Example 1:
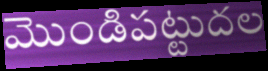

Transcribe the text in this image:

మొండిపట్టుదల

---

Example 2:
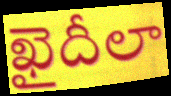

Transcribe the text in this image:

ఖైదీలా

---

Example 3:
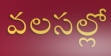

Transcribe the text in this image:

వలసల్లో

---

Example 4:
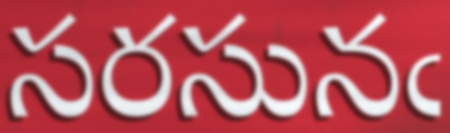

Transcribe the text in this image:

సరసునఁ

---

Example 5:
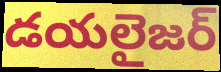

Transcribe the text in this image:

డయలైజర్